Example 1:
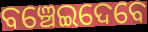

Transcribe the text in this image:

ବଞ୍ଚେଇଦେବେ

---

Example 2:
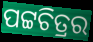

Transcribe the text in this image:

ପଟ୍ଟଚିତ୍ରର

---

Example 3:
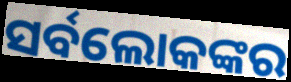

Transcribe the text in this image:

ସର୍ବଲୋକଙ୍କର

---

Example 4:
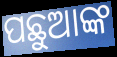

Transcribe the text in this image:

ପଛୁଆଙ୍କ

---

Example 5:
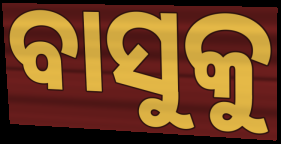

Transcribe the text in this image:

ବାସୁକୁ